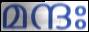
മന്ദഃ